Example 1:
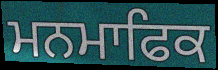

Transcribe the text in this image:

ਮਨਮਾਫਿਕ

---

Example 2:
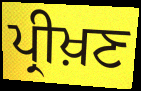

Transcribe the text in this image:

ਪ੍ਰੀਖ਼ਣ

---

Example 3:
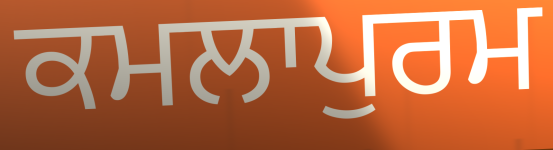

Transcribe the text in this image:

ਕਮਲਾਪੁਰਮ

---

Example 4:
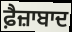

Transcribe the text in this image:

ਫ਼ੈਜ਼ਾਬਾਦ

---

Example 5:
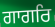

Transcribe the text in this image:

ਗਾਗਰਿ